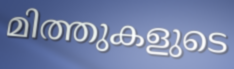
മിത്തുകളുടെ